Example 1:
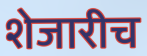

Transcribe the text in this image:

शेजारीच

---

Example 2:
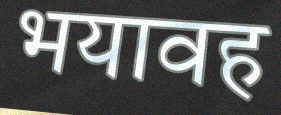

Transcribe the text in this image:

भयावह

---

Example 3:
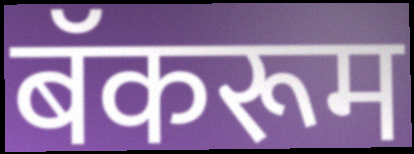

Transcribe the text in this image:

बॅकरूम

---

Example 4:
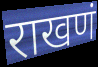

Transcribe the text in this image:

राखणं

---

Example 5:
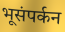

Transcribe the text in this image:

भूसंपर्कन